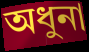
অধুনা